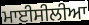
ਮਾਈਸੀਲੀਆ